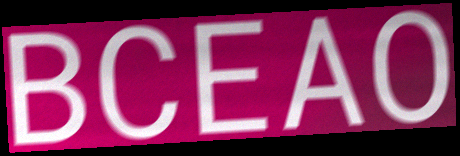
BCEAO